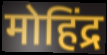
मोहिंद्र